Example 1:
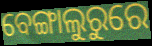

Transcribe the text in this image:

ବେଙ୍ଗାଲୁରୁରେ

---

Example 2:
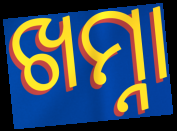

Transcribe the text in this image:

ଖମ୍ନା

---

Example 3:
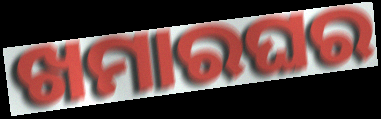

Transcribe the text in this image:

ଖମାରଘର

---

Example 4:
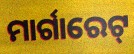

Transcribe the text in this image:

ମାର୍ଗାରେଟ୍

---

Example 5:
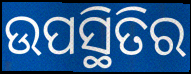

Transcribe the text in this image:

ଉପସ୍ଥିତିର